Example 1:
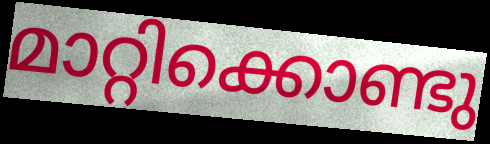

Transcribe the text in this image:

മാറ്റിക്കൊണ്ടു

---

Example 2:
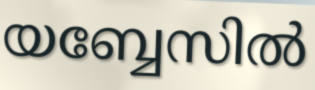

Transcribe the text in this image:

യബ്ബേസിൽ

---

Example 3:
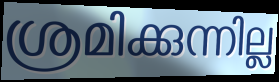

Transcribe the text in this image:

ശ്രമിക്കുന്നില്ല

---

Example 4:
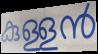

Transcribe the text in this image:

കുള്ളൻ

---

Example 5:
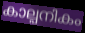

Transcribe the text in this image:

കാല്പനികം